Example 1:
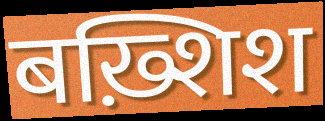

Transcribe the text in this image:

बख़्शिश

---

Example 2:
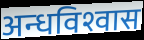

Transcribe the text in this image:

अन्धविश्वास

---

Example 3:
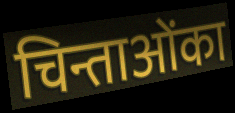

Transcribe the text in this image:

चिन्ताओंका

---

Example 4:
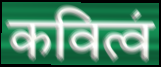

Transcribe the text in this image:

कवित्वं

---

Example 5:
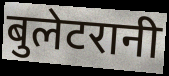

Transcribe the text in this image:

बुलेटरानी